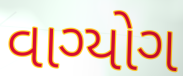
વાગ્યોગ